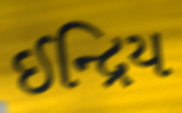
ઈન્દ્રિય